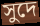
সুদে